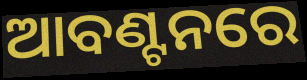
ଆବଣ୍ଟନରେ